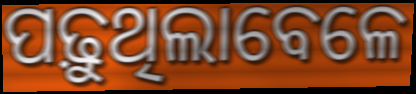
ପଢ଼ୁଥିଲାବେଳେ